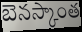
బెనస్కాంత